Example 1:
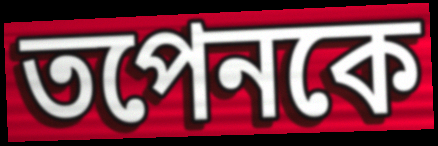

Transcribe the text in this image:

তপেনকে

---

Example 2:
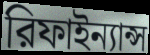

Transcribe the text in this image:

রিফাইন্যান্স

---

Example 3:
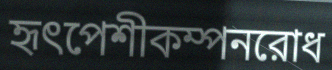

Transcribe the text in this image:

হৃৎপেশীকম্পনরোধ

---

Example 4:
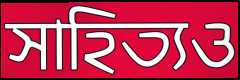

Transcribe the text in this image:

সাহিত্যও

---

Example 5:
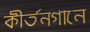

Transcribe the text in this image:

কীর্তনগানে